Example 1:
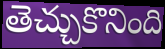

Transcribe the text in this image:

తెచ్చుకొనింది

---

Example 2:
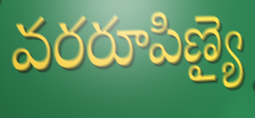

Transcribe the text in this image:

వరరూపిణ్యై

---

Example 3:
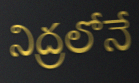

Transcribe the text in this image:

నిద్రలోనే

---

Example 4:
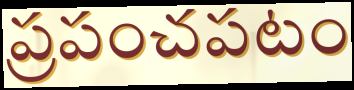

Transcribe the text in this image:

ప్రపంచపటం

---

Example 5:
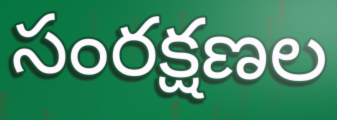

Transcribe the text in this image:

సంరక్షణల